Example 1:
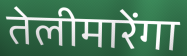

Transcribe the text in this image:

तेलीमारेंगा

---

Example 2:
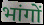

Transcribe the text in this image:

भांगों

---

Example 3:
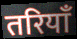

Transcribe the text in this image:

तरियाँ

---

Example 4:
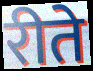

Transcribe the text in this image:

रीते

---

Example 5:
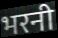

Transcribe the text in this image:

भरनी